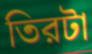
তিরটা